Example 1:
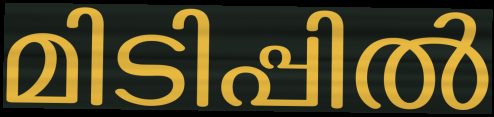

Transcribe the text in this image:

മിടിപ്പിൽ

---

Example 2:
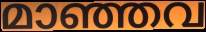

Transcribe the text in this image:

മാഞ്ഞവ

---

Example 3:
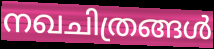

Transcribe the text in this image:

നഖചിത്രങ്ങൾ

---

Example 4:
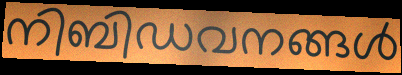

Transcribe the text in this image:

നിബിഡവനങ്ങൾ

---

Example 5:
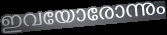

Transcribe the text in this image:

ഇവയോരോന്നും